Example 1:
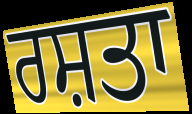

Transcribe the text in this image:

ਰਸ਼ਤਾ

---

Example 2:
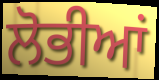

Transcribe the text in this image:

ਲੋਭੀਆਂ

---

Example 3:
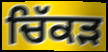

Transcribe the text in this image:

ਚਿੱਕੜ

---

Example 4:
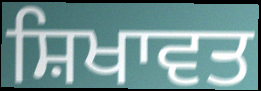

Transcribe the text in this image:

ਸ਼ਿਖਾਵਤ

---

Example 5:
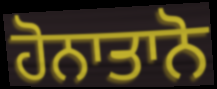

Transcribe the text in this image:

ਹੋਨਾਤਾਨੋ